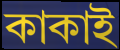
কাকাই